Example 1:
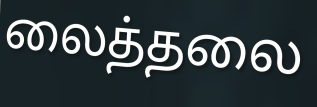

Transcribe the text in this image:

லைத்தலை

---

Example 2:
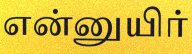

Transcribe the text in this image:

என்னுயிர்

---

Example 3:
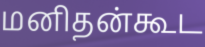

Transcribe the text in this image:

மனிதன்கூட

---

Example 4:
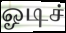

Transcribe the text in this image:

ஓடிச்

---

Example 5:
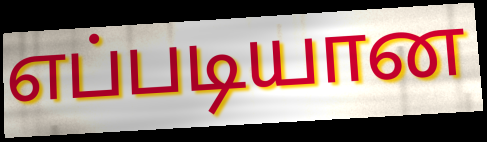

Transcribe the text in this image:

எப்படியான